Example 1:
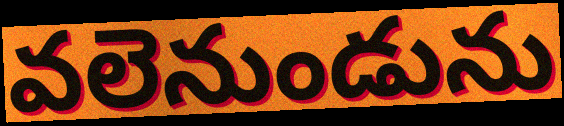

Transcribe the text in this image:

వలెనుండును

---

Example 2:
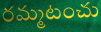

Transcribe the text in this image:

రమ్మటంచు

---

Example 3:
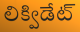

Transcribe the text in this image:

లిక్విడేట్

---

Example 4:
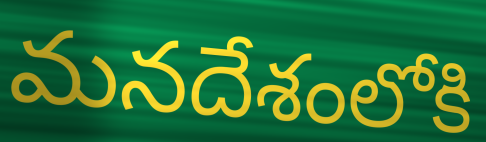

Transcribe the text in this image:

మనదేశంలోకి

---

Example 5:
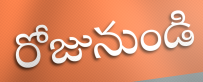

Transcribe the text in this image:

రోజునుండి